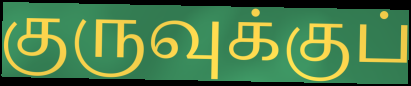
குருவுக்குப்